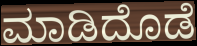
ಮಾಡಿದೊಡೆ